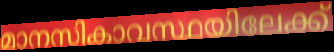
മാനസികാവസ്ഥയിലേക്ക്